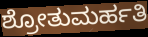
ಶ್ರೋತುಮರ್ಹತಿ